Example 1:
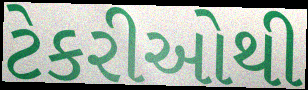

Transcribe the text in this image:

ટેકરીઓથી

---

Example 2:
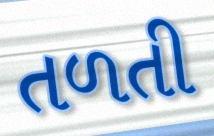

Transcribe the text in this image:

તળતી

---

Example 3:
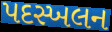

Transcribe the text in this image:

પદસ્ખલન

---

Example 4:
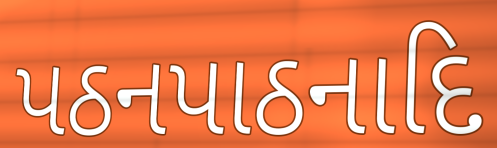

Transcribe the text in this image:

પઠનપાઠનાદિ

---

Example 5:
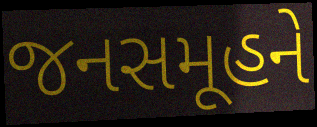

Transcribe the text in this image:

જનસમૂહને